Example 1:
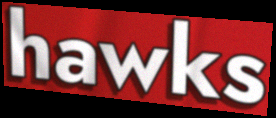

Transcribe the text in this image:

hawks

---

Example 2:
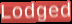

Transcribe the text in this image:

Lodged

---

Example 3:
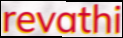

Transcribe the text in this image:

revathi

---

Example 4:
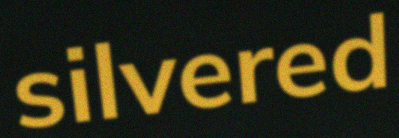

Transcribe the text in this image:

silvered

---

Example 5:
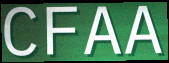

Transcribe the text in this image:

CFAA